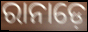
ରାନାଡ଼େ